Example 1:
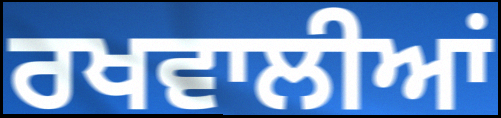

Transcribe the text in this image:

ਰਖਵਾਲੀਆਂ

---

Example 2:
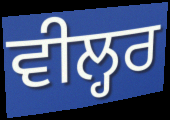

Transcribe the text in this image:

ਵੀਲ੍ਹਰ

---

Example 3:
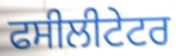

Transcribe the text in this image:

ਫਸੀਲੀਟੇਟਰ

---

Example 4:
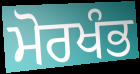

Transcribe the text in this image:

ਮੋਰਖੰਭ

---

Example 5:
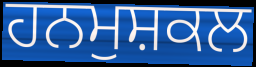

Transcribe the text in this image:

ਹਨਮੁਸ਼ਕਲ